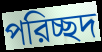
পরিচ্ছদ